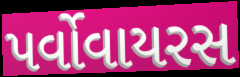
પર્વોવાયરસ